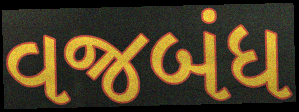
વજ્રબંધ